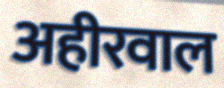
अहीरवाल